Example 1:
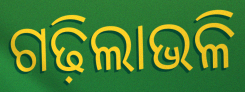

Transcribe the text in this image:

ଗଢ଼ିଲାଭଳି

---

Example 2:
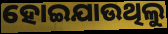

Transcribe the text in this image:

ହୋଇଯାଉଥିଲୁ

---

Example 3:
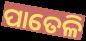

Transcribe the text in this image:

ପାତେଳି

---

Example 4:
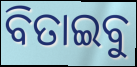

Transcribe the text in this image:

ବିତାଇବୁ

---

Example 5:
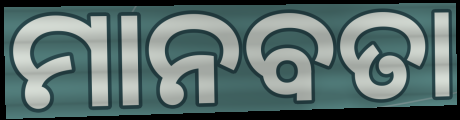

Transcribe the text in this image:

ମାନବତା